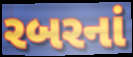
રબરનાં